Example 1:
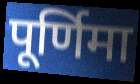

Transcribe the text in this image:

पूर्णिमा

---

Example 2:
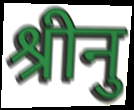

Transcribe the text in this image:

श्रीनु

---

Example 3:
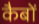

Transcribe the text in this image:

कैबों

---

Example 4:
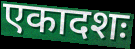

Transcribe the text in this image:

एकादशः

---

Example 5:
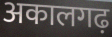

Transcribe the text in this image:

अकालगढ़